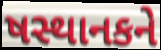
ષસ્થાનકને